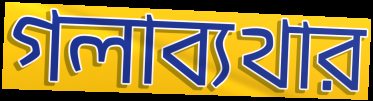
গলাব্যথার